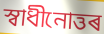
স্বাধীনোত্তৰ